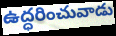
ఉద్ధరించువాడు